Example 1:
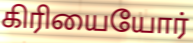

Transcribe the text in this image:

கிரியையோர்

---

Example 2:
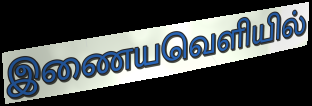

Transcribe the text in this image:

இணையவெளியில்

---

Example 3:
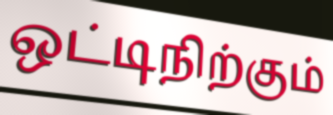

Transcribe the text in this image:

ஒட்டிநிற்கும்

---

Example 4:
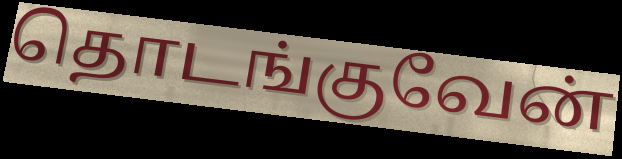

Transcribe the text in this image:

தொடங்குவேன்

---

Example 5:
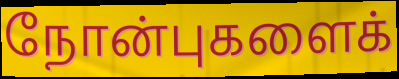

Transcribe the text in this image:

நோன்புகளைக்